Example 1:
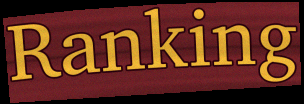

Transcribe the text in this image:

Ranking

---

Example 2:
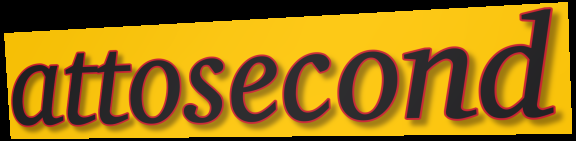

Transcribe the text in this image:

attosecond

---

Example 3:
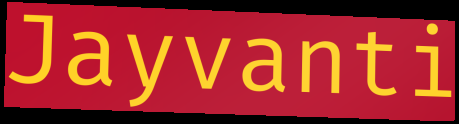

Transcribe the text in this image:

Jayvanti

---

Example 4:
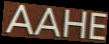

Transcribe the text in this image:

AAHE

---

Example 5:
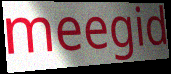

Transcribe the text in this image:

meegid